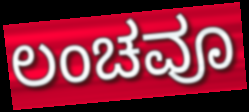
ಲಂಚವೂ